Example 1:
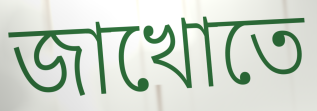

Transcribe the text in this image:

জাখোতে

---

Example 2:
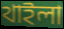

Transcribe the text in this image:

থাইলা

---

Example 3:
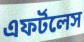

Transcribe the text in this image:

এফর্টলেস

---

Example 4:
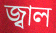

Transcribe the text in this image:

জ্বাল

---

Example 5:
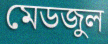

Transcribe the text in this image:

মেডজুল